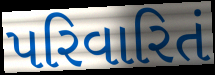
પરિવારિતં